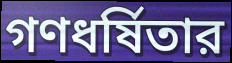
গণধর্ষিতার